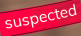
suspected